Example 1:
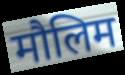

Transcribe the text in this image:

मौलिम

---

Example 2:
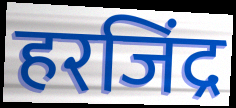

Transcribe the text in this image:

हरजिंद्र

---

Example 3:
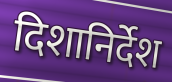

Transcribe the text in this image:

दिशानिर्देश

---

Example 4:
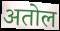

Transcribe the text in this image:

अतोल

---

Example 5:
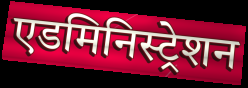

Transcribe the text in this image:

एडमिनिस्‍ट्रेशन